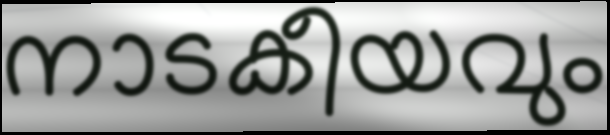
നാടകീയവും